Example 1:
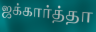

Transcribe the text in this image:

ஜக்கார்த்தா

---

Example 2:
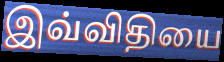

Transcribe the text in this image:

இவ்விதியை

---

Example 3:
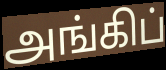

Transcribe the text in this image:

அங்கிப்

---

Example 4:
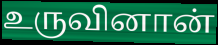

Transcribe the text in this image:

உருவினான்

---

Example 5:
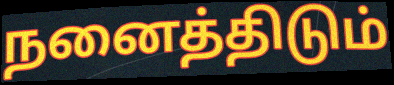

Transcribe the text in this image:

நனைத்திடும்